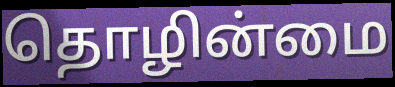
தொழின்மை